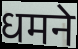
धमने